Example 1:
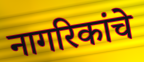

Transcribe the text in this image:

नागरिकांचे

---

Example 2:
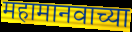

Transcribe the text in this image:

महामानवाच्या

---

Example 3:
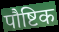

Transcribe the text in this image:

पौष्टिक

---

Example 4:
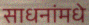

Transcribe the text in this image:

साधनांमधे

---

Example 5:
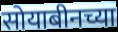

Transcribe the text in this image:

सोयाबीनच्या